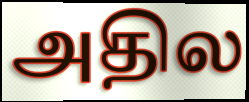
அதில